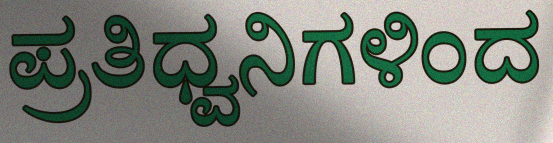
ಪ್ರತಿಧ್ವನಿಗಳಿಂದ